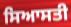
ਸਿਆਸਤੀ